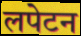
लपेटन